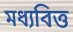
মধ্যবিত্ত